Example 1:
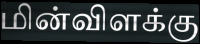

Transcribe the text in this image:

மின்விளக்கு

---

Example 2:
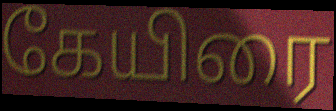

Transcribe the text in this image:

கேயிரை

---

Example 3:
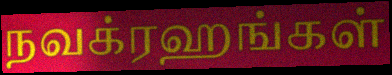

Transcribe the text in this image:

நவக்ரஹங்கள்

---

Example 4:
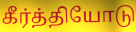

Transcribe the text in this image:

கீர்த்தியோடு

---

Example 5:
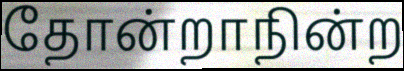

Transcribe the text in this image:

தோன்றாநின்ற